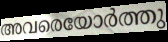
അവരെയോർത്തു